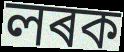
লৰক